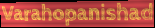
Varahopanishad